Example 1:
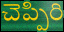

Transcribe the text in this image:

చెప్పిరి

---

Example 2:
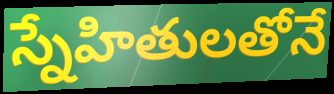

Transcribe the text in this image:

స్నేహితులతోనే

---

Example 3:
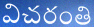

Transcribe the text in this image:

విచరంతి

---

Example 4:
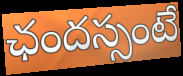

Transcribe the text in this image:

ఛందస్సంటే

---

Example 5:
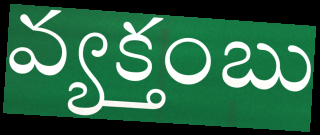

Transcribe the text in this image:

వ్యక్తంబు